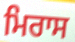
ਮਿਰਾਸ